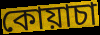
কোয়াচা